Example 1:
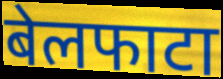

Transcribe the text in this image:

बेलफाटा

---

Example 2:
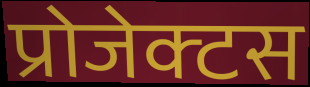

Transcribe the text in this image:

प्रोजेक्‍टस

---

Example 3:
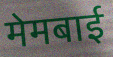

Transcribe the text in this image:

मेमबाई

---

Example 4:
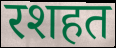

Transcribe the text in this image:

रशहत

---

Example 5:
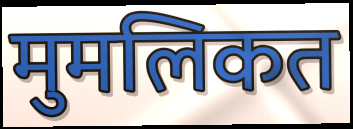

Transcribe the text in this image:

मुमलिकत